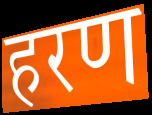
हरण